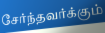
சேர்ந்தவர்க்கும்